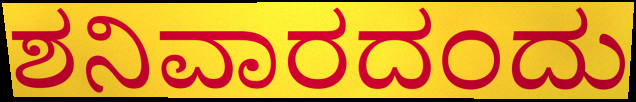
ಶನಿವಾರದಂದು